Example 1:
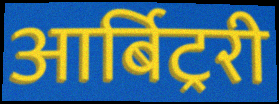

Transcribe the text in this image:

आर्बिट्ररी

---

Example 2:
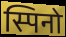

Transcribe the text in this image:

स्पिनो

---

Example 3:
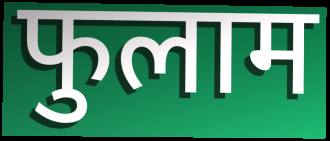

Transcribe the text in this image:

फुलाम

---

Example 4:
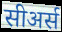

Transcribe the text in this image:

सीअर्स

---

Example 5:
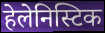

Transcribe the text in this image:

हेलेनिस्टिक